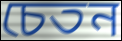
চেতন